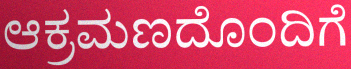
ಆಕ್ರಮಣದೊಂದಿಗೆ